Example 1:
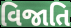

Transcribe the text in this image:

વિજાતિ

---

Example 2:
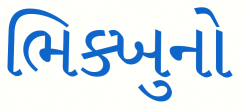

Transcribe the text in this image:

ભિક્ખુનો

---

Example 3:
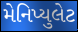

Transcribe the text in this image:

મેનિપ્યુલેટ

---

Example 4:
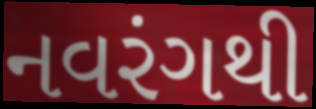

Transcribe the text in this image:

નવરંગથી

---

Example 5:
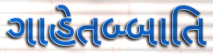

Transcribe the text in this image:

ગાહેતબ્બાતિ